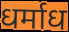
धर्माध